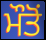
ਮੌਤੋਂ